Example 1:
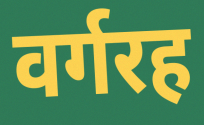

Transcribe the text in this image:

वर्गरह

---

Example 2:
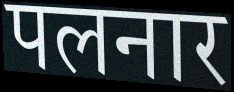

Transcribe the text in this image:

पलनार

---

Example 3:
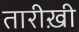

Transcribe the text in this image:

तारीख़ी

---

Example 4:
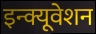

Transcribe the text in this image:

इन्क्यूवेशन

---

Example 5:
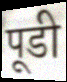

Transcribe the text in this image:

पूडी